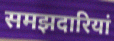
समझदारियां